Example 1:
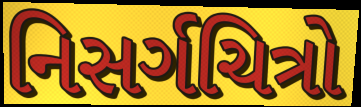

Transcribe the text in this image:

નિસર્ગચિત્રો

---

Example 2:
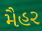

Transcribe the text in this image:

મૈહર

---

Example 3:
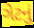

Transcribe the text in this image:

ગેટનું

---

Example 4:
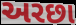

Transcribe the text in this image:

અરછા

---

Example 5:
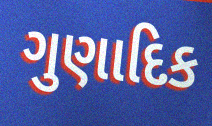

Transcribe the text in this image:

ગુણાદિક